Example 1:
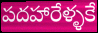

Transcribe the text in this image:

పదహారేళ్ళకే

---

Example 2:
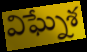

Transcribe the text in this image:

విఘ్నేశ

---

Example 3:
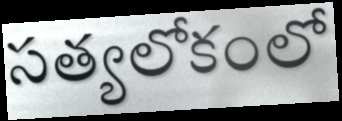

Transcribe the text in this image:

సత్యలోకంలో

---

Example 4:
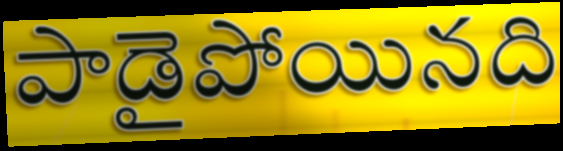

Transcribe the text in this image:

పాడైపోయినది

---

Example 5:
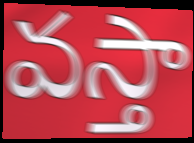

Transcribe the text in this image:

వస్తా